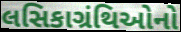
લસિકાગ્રંથિઓનો